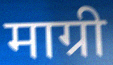
माग्री